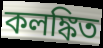
কলঙ্কিত